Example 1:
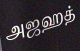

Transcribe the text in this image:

அஜஹத்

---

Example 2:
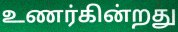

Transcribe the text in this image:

உணர்கின்றது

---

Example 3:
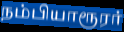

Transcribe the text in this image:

நம்பியாரூரர்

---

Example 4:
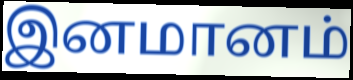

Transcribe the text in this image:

இனமானம்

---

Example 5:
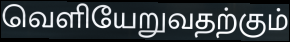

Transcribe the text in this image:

வெளியேறுவதற்கும்